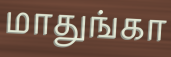
மாதுங்கா